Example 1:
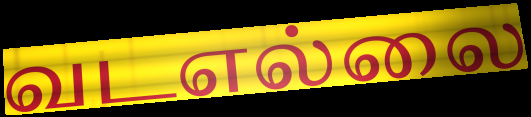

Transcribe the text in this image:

வடஎல்லை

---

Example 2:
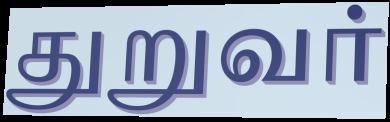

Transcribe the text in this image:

துறுவர்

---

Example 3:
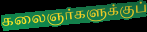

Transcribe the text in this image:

கலைஞர்களுக்குப்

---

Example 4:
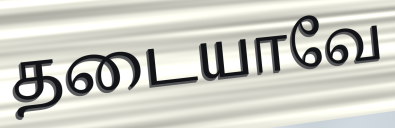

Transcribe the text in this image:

தடையாவே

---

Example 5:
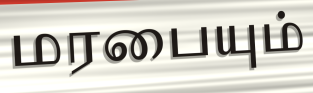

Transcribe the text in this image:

மரபையும்